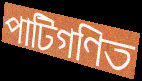
পাটিগণিত